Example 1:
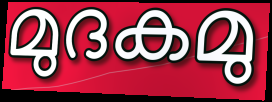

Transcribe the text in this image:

മുദകമു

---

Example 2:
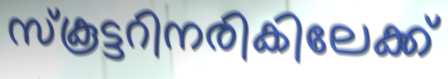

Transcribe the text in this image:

സ്കൂട്ടറിനരികിലേക്ക്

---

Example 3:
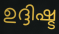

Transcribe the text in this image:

ഉദ്ദിഷ്ട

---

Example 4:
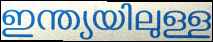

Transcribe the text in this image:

ഇന്ത്യയിലുള്ള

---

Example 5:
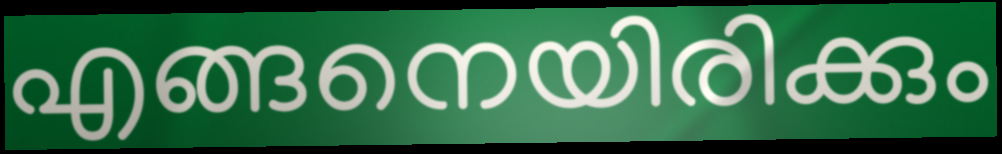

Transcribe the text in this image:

എങ്ങനെയിരിക്കും